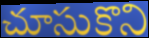
చూసుకొని